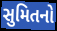
સુમિતનો